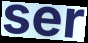
ser